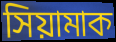
সিয়ামাক